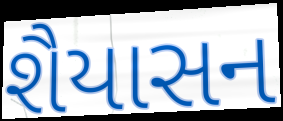
શૈયાસન